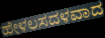
ಹೇಳಲಸದಳವಾದ